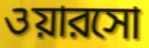
ওয়ারসো